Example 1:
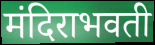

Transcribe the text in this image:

मंदिराभवती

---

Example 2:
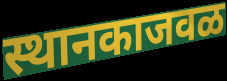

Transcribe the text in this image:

स्थानकाजवळ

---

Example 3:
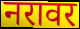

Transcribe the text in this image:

नरावर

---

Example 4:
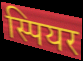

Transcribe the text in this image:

स्पियर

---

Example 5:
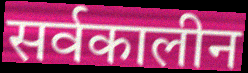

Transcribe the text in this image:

सर्वकालीन